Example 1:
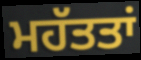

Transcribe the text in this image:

ਮਹੱਤਤਾਂ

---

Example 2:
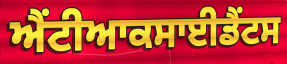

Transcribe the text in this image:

ਐਂਟੀਆਕਸਾਈਡੈਂਟਸ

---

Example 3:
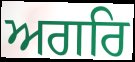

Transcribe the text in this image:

ਅਗਰਿ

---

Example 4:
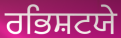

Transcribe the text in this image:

ਰਭਿਸ਼ਟਯੇ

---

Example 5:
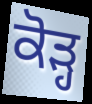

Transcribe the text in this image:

ਕੋੜ੍ਹ